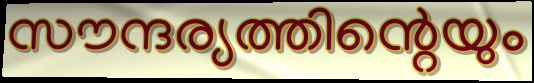
സൗന്ദര്യത്തിന്റെയും